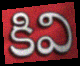
కివి